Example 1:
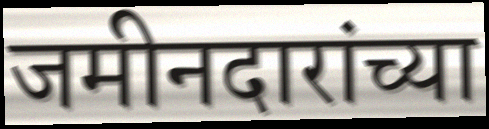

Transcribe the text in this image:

जमीनदारांच्या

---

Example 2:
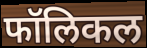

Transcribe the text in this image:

फॉलिकल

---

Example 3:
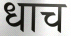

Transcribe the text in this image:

धाच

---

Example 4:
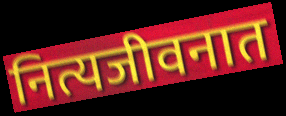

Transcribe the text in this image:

नित्यजीवनात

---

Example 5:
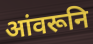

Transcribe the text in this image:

आंवरूनि